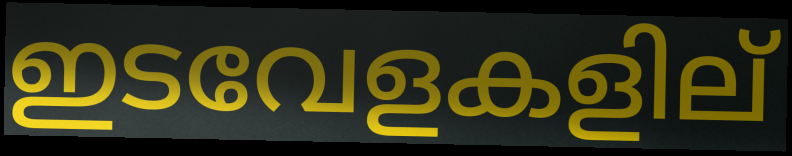
ഇടവേളകളില്